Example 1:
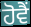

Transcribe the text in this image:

ਹੋਵੈਂ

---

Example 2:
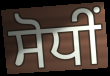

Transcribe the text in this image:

ਸੋਧੀਂ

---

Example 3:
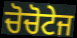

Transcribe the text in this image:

ਚੋਚੋਟੇਜ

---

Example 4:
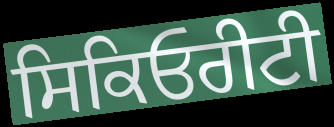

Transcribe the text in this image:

ਸਿਕਿਓਰੀਟੀ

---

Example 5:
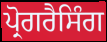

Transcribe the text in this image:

ਪ੍ਰੋਗਰੈਸਿੰਗ